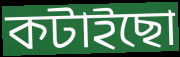
কটাইছো